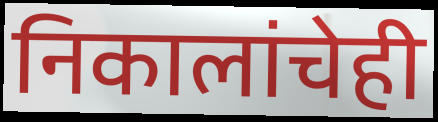
निकालांचेही